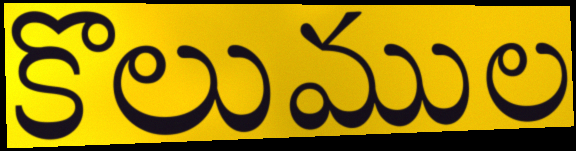
కొలుముల